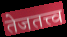
तेजतत्त्व